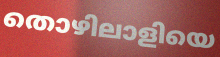
തൊഴിലാളിയെ